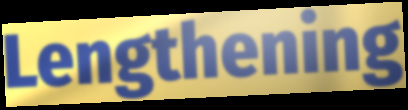
Lengthening